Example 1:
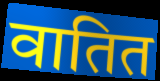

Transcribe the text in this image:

वातित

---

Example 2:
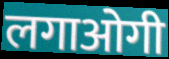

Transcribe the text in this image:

लगाओगी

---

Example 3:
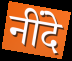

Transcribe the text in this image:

नींदे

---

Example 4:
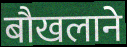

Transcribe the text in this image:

बौखलाने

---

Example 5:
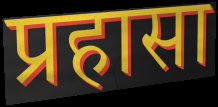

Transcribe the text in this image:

प्रहासा